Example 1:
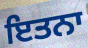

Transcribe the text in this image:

ਇਤਨਾ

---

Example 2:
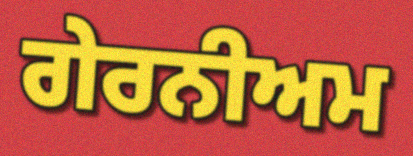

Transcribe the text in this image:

ਗੇਰਨੀਅਮ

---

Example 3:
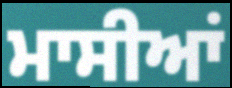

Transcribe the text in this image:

ਮਾਸੀਆਂ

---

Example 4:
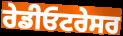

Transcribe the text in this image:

ਰੇਡੀਓਟਰੇਸਰ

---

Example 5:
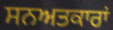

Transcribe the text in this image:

ਸਨਅਤਕਾਰਾਂ